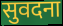
सुवदना